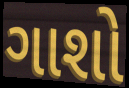
ગાશો